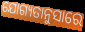
ଯୋଗ୍ୟତାନୁସାରେ